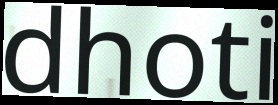
dhoti